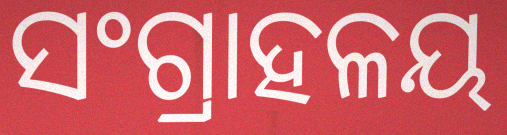
ସଂଗ୍ରାହଳୟ